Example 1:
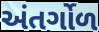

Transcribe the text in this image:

અંતર્ગોળ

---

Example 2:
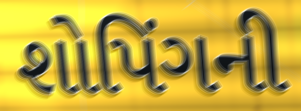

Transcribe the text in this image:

શોપિંગની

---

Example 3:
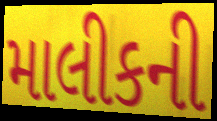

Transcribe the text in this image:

માલીકની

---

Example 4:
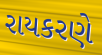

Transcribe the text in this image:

રાયકરણે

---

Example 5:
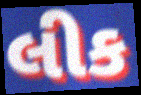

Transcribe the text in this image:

લીક